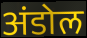
अंडोल